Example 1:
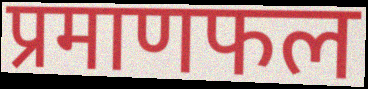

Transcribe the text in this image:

प्रमाणफल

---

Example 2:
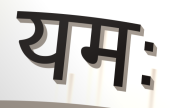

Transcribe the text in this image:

यमः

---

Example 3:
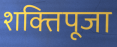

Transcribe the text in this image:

शक्तिपूजा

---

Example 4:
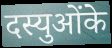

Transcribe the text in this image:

दस्युओंके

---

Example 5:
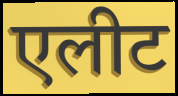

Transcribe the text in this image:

एलीट